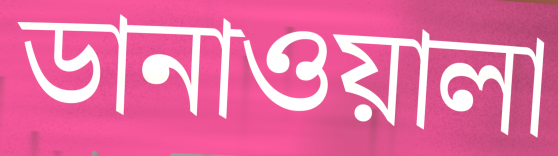
ডানাওয়ালা